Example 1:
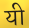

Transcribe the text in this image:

यी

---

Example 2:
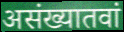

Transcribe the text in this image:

असंख्यातवां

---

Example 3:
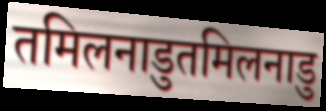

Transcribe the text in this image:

तमिलनाडुतमिलनाडु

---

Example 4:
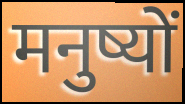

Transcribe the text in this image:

मनुष्यों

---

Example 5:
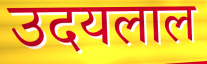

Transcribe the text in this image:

उदयलाल